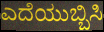
ಎದೆಯುಬ್ಬಿಸಿ